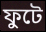
ফুটে